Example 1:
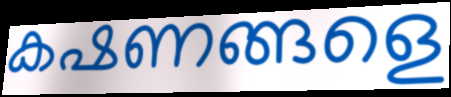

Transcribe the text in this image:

കഷണങ്ങളെ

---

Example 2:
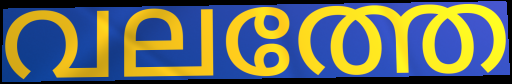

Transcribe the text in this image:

വലത്തേ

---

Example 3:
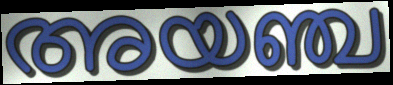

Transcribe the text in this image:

അയഞ്ച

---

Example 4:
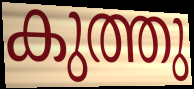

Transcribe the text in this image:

കുത്തു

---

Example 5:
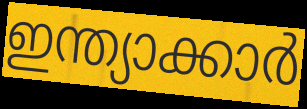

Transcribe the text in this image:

ഇന്ത്യാക്കാർ